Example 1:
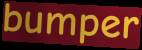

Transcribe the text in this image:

bumper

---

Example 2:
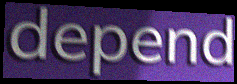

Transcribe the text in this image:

depend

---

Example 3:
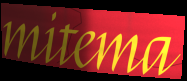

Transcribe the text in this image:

mitema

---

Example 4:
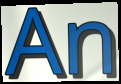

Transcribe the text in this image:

An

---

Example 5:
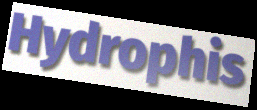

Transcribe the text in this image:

Hydrophis